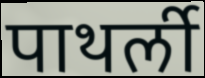
पाथर्ली